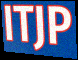
ITJP